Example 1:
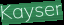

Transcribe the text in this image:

Kayser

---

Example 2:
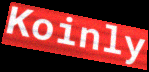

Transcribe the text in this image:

Koinly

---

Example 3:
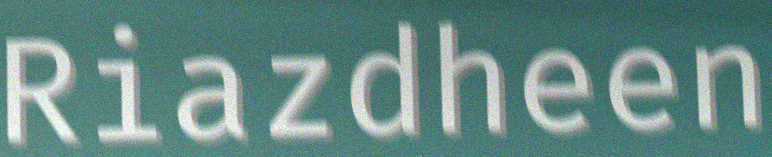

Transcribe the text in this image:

Riazdheen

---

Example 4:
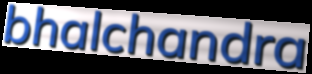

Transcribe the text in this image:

bhalchandra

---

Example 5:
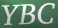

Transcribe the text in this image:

YBC